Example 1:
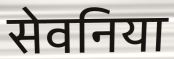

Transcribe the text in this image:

सेवनिया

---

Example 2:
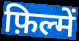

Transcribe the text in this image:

फ़िल्में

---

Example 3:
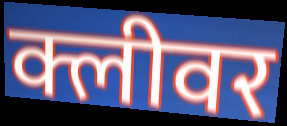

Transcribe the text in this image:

क्लीवर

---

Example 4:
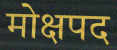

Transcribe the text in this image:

मोक्षपद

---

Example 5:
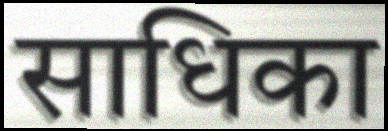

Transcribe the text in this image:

साधिका